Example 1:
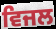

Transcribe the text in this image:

ਵਿਜਲ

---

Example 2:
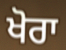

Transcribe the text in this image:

ਖੋਰਾ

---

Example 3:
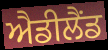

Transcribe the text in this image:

ਐਡੀਲੈਂਡ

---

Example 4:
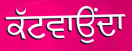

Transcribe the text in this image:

ਕੱਟਵਾਉਂਦਾ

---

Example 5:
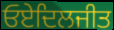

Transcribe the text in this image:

ਓਏਦਿਲਜੀਤ